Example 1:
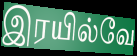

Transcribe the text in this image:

இரயில்வே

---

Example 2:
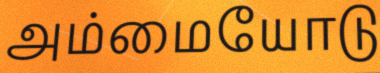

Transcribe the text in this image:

அம்மையோடு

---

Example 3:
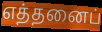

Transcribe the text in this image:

எத்தனைப்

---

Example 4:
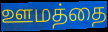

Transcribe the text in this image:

ஊமத்தை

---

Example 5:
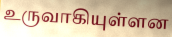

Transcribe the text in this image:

உருவாகியுள்ளன